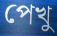
পেখু